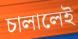
চালালেই